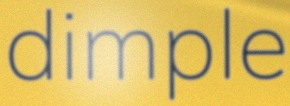
dimple